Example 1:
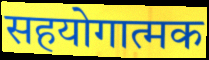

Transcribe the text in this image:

सहयोगात्मक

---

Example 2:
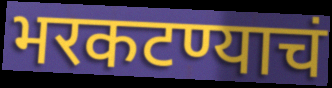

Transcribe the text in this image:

भरकटण्याचं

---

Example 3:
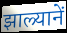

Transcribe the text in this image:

झाल्यानें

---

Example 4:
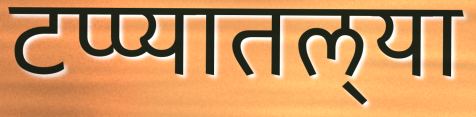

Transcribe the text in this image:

टप्प्यातल्या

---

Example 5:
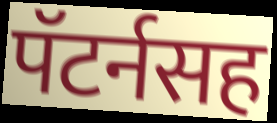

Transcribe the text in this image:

पॅटर्नसह